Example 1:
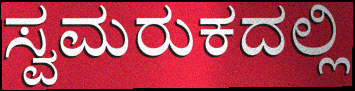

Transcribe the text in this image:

ಸ್ವಮರುಕದಲ್ಲಿ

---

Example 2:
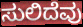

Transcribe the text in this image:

ಸುಲಿದೆವು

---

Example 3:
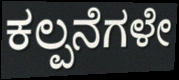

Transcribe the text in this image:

ಕಲ್ಪನೆಗಳೇ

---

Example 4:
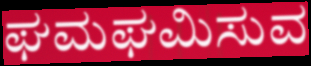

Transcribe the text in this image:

ಘಮಘಮಿಸುವ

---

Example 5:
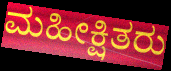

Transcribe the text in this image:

ಮಹೀಕ್ಷಿತರು